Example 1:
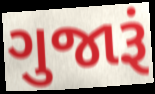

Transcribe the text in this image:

ગુજારૂં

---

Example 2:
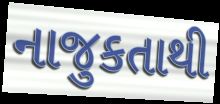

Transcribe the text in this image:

નાજુકતાથી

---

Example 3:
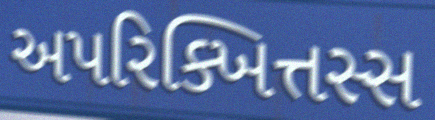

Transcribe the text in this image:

અપરિક્ખિત્તસ્સ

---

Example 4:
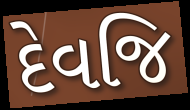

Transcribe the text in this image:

દેવજિ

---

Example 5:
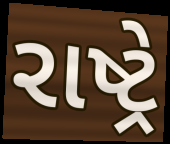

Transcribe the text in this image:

રાષ્ટ્રે